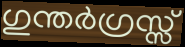
ഗുന്തർഗ്രസ്സ്